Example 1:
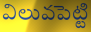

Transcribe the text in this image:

విలువపెట్టి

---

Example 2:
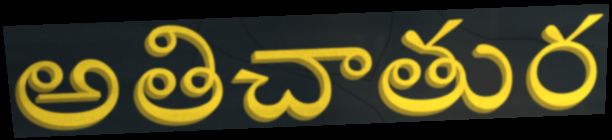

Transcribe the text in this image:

అతిచాతుర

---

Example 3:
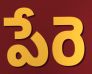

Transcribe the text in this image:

పేరె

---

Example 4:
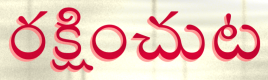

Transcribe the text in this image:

రక్షించుట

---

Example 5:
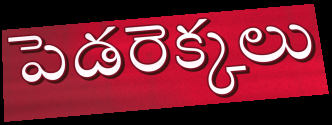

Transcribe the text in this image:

పెడరెక్కలు